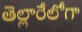
తెల్లారేలోగా